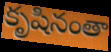
కృషినంతా